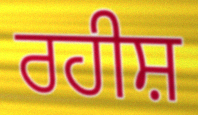
ਰਹੀਸ਼